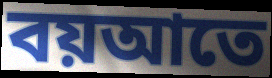
বয়আতে